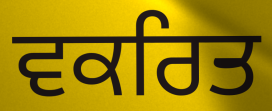
ਵਕਰਿਤ